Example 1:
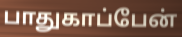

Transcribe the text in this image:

பாதுகாப்பேன்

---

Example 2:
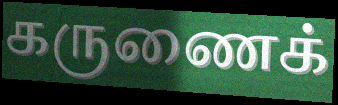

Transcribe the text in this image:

கருணைக்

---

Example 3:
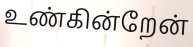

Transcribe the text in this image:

உண்கின்றேன்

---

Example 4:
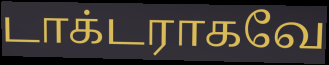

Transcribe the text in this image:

டாக்டராகவே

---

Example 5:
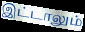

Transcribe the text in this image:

இட்டாலும்